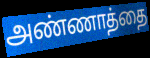
அண்ணாத்தை